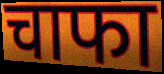
चाफा